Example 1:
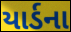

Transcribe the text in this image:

યાર્ડના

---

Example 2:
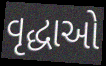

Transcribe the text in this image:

વૃદ્ધાઓ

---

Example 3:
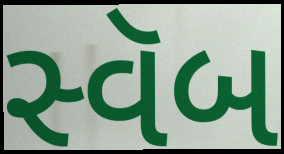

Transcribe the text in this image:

સ્વૅબ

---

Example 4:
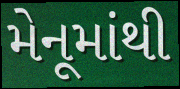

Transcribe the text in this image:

મેનૂમાંથી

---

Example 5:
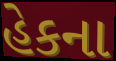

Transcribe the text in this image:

હેકના